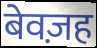
बेवज़ह